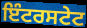
ਇੰਟਰਸਟੇਟ